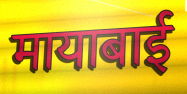
मायाबाई